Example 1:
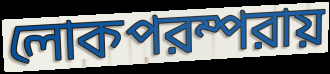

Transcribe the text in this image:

লোকপরম্পরায়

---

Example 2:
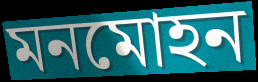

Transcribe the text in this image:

মনমোহন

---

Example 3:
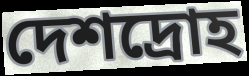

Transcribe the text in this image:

দেশদ্রোহ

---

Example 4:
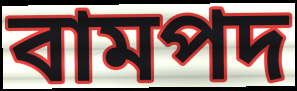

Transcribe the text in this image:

বামপদ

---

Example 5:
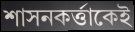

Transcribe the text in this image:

শাসনকর্ত্তাকেই